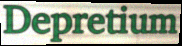
Depretium